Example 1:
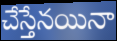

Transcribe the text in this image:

చేస్తేనయినా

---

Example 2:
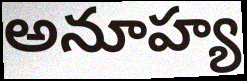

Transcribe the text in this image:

అనూహ్య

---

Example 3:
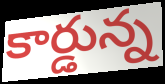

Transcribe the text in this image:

కార్డున్న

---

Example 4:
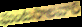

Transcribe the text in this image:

ఘంటసాలవారి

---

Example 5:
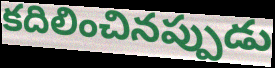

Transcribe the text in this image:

కదిలించినప్పుడు